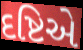
દષ્ટિએ